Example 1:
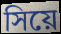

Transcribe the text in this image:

সিয়ে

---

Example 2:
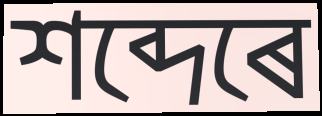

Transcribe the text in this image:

শব্দেৰে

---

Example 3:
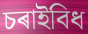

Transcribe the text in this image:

চৰাইবিধ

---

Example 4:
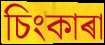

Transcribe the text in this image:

চিংকাৰা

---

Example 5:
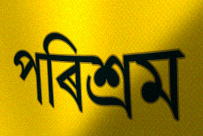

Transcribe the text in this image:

পৰিশ্ৰম